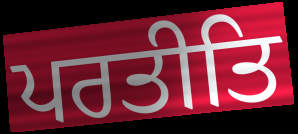
ਪਰਤੀਤਿ